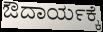
ಔದಾರ್ಯಕ್ಕೆ